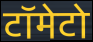
टॉमेटो